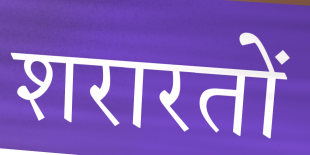
शरारतों